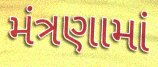
મંત્રણામાં